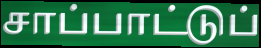
சாப்பாட்டுப்